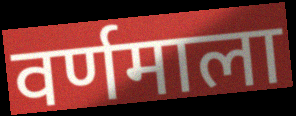
वर्णमाला